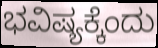
ಭವಿಷ್ಯಕ್ಕೆಂದು